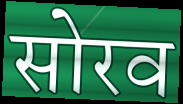
सोरव